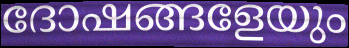
ദോഷങ്ങളേയും